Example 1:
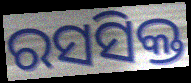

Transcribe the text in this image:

ରସସିକ୍ତ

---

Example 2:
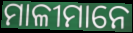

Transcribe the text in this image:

ମାଳୀମାନେ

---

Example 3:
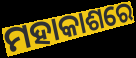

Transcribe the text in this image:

ମହାକାଶରେ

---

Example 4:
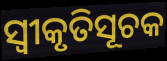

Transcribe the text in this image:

ସ୍ଵୀକୃତିସୂଚକ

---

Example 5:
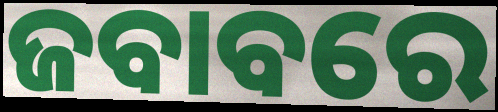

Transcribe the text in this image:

ଜବାବରେ